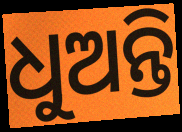
ଧୁଅନ୍ତି